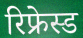
रिफ्रेस्ड